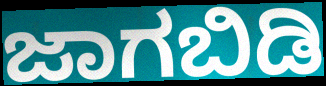
ಜಾಗಬಿಡಿ